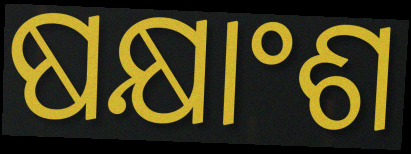
ଷକ୍ଷାଂଶ